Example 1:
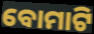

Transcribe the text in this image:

ବୋମାଟି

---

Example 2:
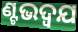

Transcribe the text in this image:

ଣ୍ଟଭଦ୍ଵଯ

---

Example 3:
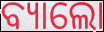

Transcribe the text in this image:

ବ୍ୟାଲୋ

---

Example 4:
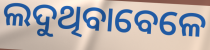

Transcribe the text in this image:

ଲଦୁଥିବାବେଳେ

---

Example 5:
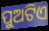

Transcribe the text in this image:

ପୁଅଟିଏ